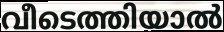
വീടെത്തിയാൽ